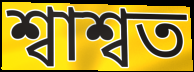
শ্বাশ্বত